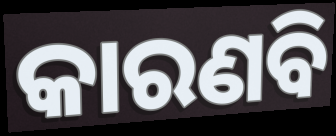
କାରଣବି